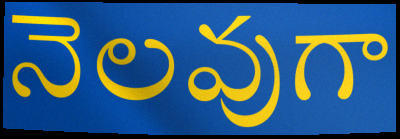
నెలవుగా